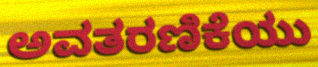
ಅವತರಣಿಕೆಯು